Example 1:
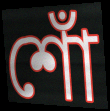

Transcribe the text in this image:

শোঁ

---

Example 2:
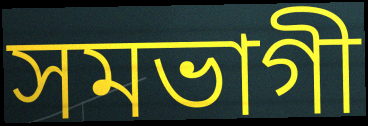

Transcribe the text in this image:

সমভাগী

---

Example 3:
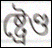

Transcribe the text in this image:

ষ্ট্ৰেণ্ড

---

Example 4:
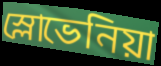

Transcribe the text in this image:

স্লোভেনিয়া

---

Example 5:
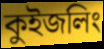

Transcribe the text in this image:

কুইজলিং